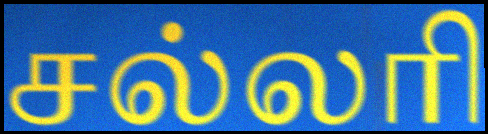
சல்லரி